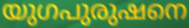
യുഗപുരുഷനെ